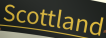
Scottland